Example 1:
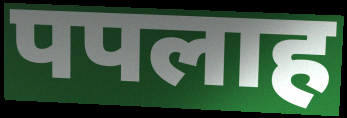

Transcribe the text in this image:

पपलाह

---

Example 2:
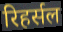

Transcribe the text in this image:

रिहर्सल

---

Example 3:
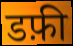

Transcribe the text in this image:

डफ़ी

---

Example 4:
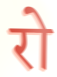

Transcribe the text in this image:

रो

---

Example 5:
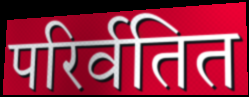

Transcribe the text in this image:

परिर्वतित